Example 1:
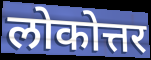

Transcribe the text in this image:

लोकोत्तर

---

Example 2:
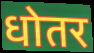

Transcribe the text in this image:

धोतर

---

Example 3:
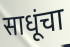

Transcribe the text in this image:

साधूंचा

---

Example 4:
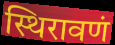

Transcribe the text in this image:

स्थिरावणं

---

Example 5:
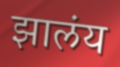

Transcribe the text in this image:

झालंय